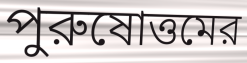
পুরুষোত্তমের